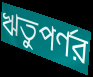
ঋতুপর্ণর